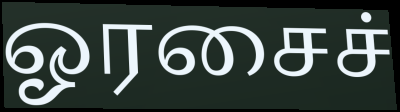
ஓரசைச்